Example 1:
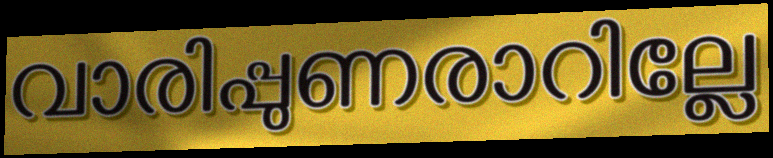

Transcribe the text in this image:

വാരിപ്പുണരാറില്ലേ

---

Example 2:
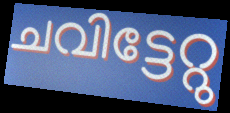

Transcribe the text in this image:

ചവിട്ടേറ്റു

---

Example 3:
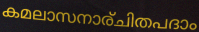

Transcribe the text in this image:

കമലാസനാര്ചിതപദാം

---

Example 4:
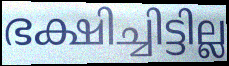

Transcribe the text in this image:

ഭക്ഷിച്ചിട്ടില്ല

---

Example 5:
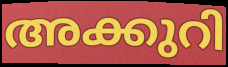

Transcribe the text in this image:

അക്കുറി